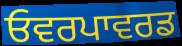
ਓਵਰਪਾਵਰਡ